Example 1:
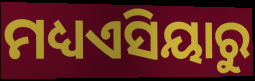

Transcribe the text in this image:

ମଧ୍ୟଏସିୟାରୁ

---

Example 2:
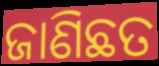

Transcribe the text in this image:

ଜାଣିଛତ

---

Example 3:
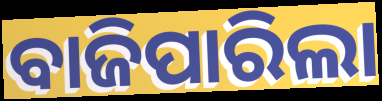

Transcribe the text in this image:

ବାଜିପାରିଲା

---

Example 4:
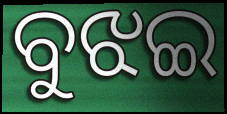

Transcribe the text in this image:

ବୁଝଇ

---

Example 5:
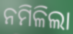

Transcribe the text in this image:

ନମିଳିଲା